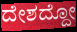
ದೇಶದ್ದೋ